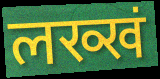
लख्खं